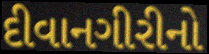
દીવાનગીરીનો